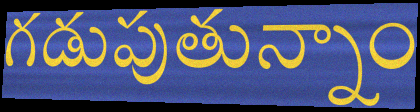
గడుపుతున్నాం